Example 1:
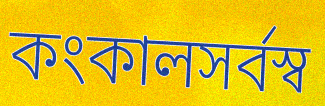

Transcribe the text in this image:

কংকালসর্বস্ব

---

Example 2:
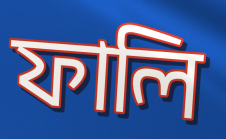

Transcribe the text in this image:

ফালি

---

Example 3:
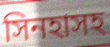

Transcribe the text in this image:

সিনহাসহ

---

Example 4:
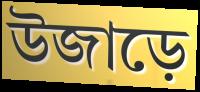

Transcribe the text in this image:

উজাড়ে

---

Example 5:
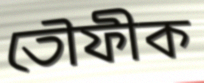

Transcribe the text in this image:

তৌফীক